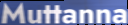
Muttanna